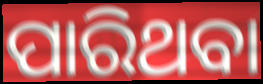
ପାରିଥବା